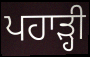
ਪਹਾੜ੍ਹੀ